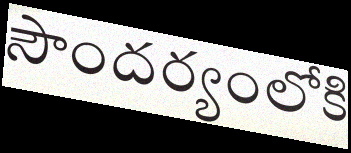
సౌందర్యంలోకి